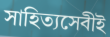
সাহিত্যসেবীই